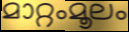
മാറ്റംമൂലം